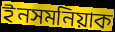
ইনসমনিয়াক